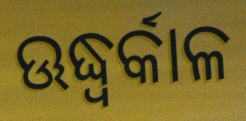
ଊଦ୍ଧ୍ୱର୍କାଳ